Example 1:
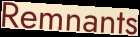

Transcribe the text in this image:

Remnants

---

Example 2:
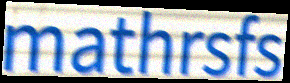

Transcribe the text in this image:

mathrsfs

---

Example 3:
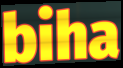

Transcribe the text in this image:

biha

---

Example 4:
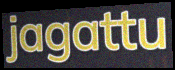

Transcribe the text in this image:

jagattu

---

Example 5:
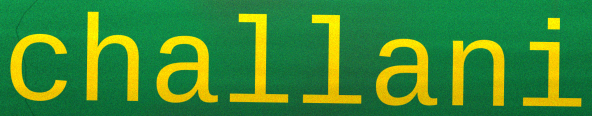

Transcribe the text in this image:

challani